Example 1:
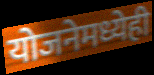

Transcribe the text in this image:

योजनेमध्येही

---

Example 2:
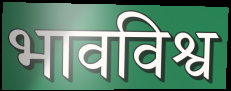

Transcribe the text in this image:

भावविश्व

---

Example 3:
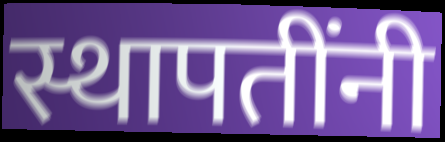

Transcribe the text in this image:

स्थापतींनी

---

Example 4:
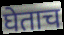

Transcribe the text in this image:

घेताच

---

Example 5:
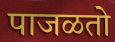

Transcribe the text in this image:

पाजळतो